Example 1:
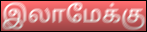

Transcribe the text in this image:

இலாமேக்கு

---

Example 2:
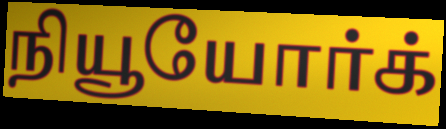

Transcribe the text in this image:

நியூயோர்க்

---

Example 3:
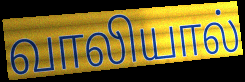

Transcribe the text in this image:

வாலியால்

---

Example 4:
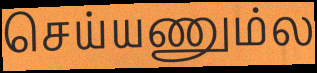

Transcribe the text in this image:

செய்யணும்ல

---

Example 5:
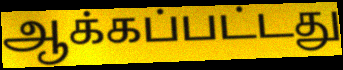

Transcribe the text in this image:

ஆக்கப்பட்டது